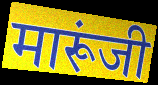
मारूंजी